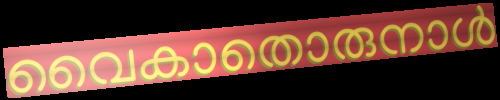
വൈകാതൊരുനാൾ